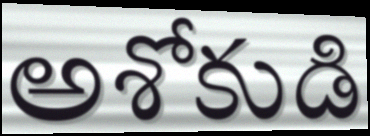
అశోకుడి